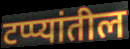
टप्प्यांतील